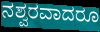
ನಶ್ವರವಾದರೂ